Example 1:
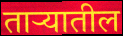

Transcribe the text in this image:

ताऱ्यातील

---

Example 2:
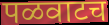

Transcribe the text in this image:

पळवाटच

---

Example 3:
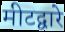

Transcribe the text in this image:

मीटद्वारे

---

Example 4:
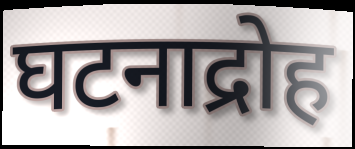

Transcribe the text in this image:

घटनाद्रोह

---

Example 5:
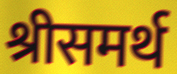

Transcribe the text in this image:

श्रीसमर्थ